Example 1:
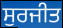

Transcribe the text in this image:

ਸੁਰਜੀਤ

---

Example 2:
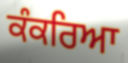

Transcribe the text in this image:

ਕੰਕਰਿਆ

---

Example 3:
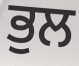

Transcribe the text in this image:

ਭੁਲ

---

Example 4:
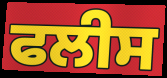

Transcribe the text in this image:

ਫਲੀਸ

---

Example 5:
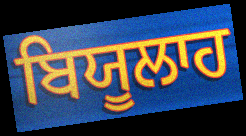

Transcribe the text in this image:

ਬਿਯੂਲਾਹ